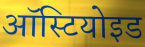
ऑस्टियोइड